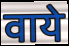
वाये